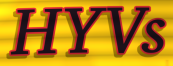
HYVs